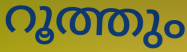
റൂത്തും